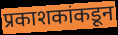
प्रकाशकांकडून